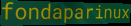
fondaparinux